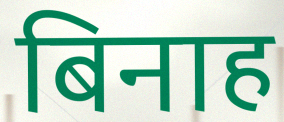
बिनाह